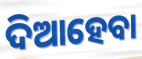
ଦିଆହେବା